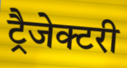
ट्रैजेक्टरी